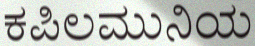
ಕಪಿಲಮುನಿಯ